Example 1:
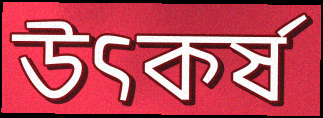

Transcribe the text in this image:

উৎকৰ্ষ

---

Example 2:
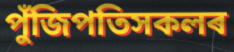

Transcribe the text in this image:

পুঁজিপতিসকলৰ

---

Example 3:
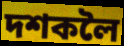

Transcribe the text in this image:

দশকলৈ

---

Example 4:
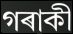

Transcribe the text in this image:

গৰাকী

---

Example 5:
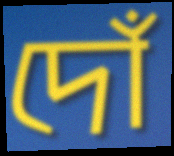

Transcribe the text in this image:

দোঁ